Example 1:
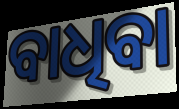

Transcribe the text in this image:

ବାଧିବା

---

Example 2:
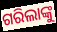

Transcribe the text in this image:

ଗରିଲାଙ୍କୁ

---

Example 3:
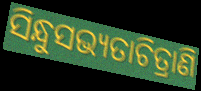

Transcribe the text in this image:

ସିନ୍ଧୁସଭ୍ୟତାଚିତ୍ରାଣି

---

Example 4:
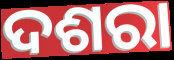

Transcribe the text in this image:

ଦଶରା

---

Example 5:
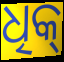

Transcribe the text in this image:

ଧିକ୍